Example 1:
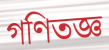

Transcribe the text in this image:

গণিতজ্ঞ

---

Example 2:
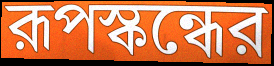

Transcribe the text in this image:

রূপস্কন্ধের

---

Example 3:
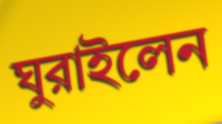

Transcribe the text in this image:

ঘুরাইলেন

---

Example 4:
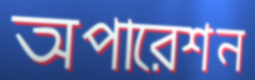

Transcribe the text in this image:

অপারেশন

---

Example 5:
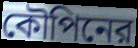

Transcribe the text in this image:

কৌপিনের